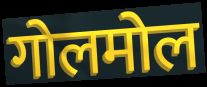
गोलमोल